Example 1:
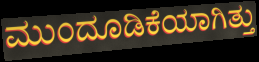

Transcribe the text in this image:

ಮುಂದೂಡಿಕೆಯಾಗಿತ್ತು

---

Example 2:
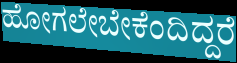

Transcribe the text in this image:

ಹೋಗಲೇಬೇಕೆಂದಿದ್ದರೆ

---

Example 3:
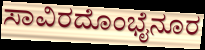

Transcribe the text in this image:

ಸಾವಿರದೊಂಭೈನೂರ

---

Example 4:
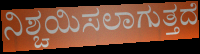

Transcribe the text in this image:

ನಿಶ್ಚಯಿಸಲಾಗುತ್ತದೆ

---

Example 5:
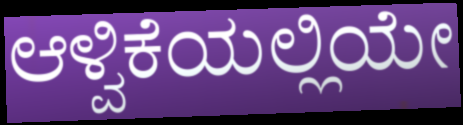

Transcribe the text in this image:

ಆಳ್ವಿಕೆಯಲ್ಲಿಯೇ